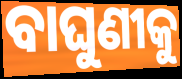
ବାଘୁଣୀକୁ